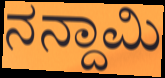
ನನ್ದಾಮಿ